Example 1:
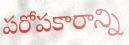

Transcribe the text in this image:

పరోపకారాన్ని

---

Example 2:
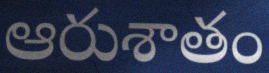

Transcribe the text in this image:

ఆరుశాతం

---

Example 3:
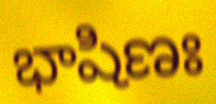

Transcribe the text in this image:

భాషిణః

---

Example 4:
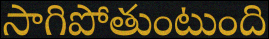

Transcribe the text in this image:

సాగిపోతుంటుంది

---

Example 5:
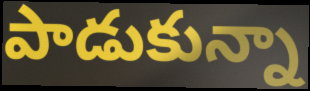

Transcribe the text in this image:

పాడుకున్నా